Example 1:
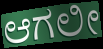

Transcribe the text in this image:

ಆಗಲೀ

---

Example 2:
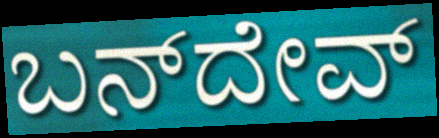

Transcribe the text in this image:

ಬನ್‌ದೇವ್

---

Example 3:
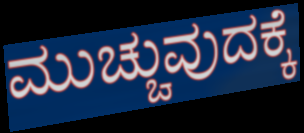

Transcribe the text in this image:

ಮುಚ್ಚುವುದಕ್ಕೆ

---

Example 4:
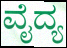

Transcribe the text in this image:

ವೈದ್ಯ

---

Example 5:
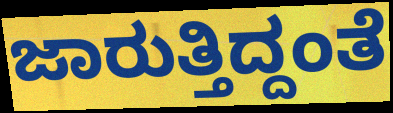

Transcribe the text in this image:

ಜಾರುತ್ತಿದ್ದಂತೆ